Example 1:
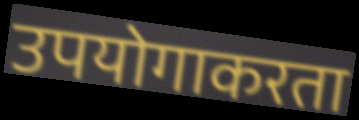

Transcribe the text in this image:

उपयोगाकरता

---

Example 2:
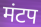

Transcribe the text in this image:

मंटप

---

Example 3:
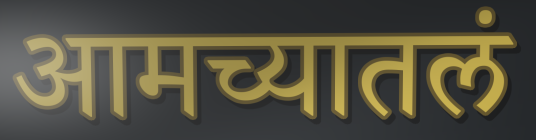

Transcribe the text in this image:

आमच्यातलं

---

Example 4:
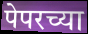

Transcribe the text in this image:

पेपरच्या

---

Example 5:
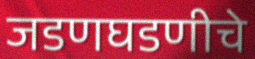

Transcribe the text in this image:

जडणघडणीचे